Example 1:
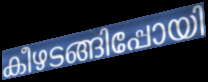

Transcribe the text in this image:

കീഴടങ്ങിപ്പോയി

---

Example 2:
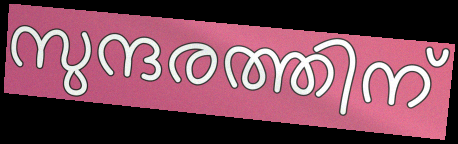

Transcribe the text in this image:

സുന്ദരത്തിന്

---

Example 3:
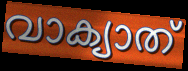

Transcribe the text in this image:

വാക്യാത്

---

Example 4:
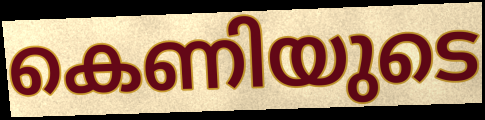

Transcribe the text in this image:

കെണിയുടെ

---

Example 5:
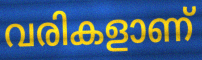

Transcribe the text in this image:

വരികളാണ്